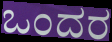
ಒಂದರ